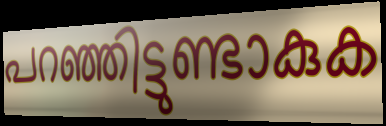
പറഞ്ഞിട്ടുണ്ടാകുക